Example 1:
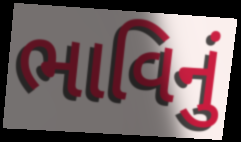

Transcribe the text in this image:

ભાવિનું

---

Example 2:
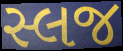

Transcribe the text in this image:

સ્લજ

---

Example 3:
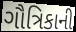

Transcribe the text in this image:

ગૌત્રિકાની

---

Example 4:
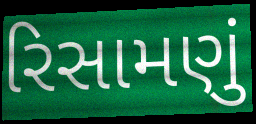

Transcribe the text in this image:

રિસામણું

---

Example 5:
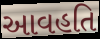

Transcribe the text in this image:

આવહતિ